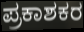
ಪ್ರಕಾಶಕರ